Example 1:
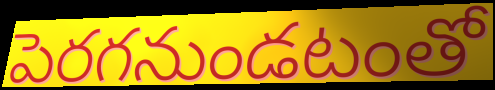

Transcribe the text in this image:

పెరగనుండటంతో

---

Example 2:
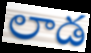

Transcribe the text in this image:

లాడ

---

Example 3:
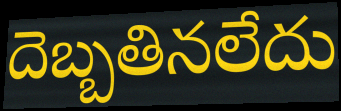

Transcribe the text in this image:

దెబ్బతినలేదు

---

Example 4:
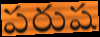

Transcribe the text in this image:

పరుష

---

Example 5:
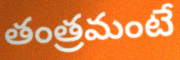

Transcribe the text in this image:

తంత్రమంటే